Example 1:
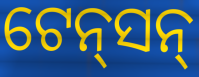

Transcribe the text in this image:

ଟେନ୍‌ସନ୍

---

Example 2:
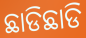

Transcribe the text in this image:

ଛାଡିଛାଡି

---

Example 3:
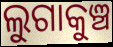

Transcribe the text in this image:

ଲୁଗାକୁଞ୍ଚ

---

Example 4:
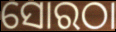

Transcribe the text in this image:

ସୋରଠା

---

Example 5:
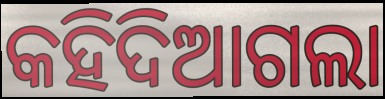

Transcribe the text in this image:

କହିଦିଆଗଲା